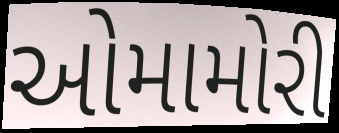
ઓમામોરી